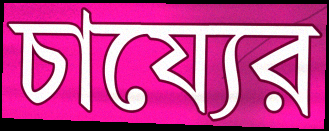
চায্যের